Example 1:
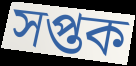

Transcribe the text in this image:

সপ্তক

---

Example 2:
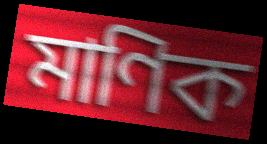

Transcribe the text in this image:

মাণিক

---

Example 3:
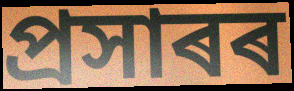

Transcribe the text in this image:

প্ৰসাৰৰ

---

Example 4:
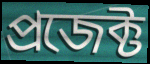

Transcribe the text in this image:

প্ৰজেক্ট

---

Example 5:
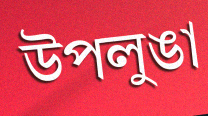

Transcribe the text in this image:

উপলুঙা